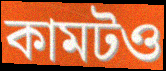
কামটও